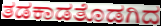
ತಡಕಾಡತೊಡಗಿದ